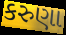
કરુણા